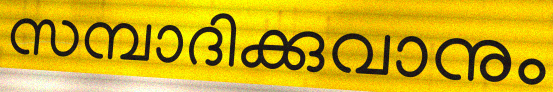
സമ്പാദിക്കുവാനും